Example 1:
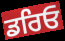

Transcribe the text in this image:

ਡਰਿਓ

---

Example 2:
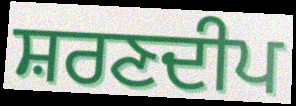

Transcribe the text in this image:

ਸ਼ਰਣਦੀਪ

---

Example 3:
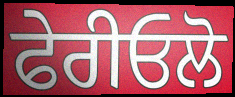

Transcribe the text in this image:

ਫੇਰੀਓਲੋ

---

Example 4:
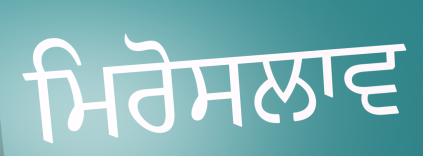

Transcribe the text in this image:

ਮਿਰੋਸਲਾਵ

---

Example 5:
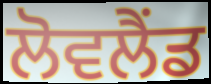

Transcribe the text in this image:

ਲੋਵਲੈਂਡ